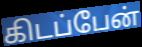
கிடப்பேன்